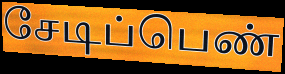
சேடிப்பெண்